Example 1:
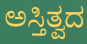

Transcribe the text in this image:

ಅಸ್ತಿತ್ವದ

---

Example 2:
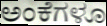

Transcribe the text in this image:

ಅಂಕೆಗಳೂ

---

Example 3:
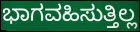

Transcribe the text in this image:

ಭಾಗವಹಿಸುತ್ತಿಲ್ಲ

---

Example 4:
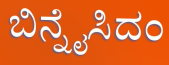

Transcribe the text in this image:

ಬಿನ್ನೈಸಿದಂ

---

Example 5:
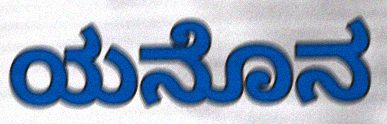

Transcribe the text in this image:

ಯನೊನ